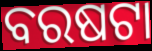
ବରଷଟା